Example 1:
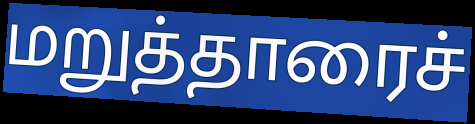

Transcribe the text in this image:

மறுத்தாரைச்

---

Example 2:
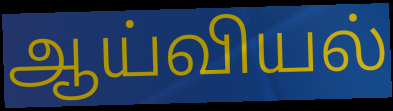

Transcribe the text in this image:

ஆய்வியல்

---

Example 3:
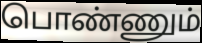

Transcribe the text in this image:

பொண்ணும்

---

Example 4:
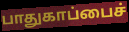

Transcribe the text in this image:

பாதுகாப்பைச்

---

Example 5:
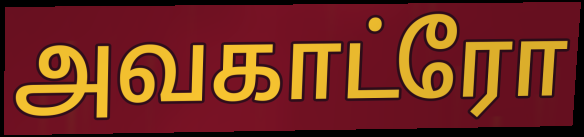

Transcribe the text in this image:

அவகாட்ரோ